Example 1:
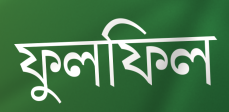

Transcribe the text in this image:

ফুলফিল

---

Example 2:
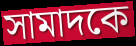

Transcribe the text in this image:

সামাদকে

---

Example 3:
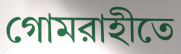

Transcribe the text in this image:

গোমরাহীতে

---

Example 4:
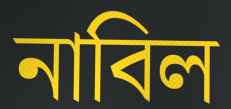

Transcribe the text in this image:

নাবিল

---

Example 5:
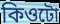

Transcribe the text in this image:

কিওটো